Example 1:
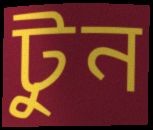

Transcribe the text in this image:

টুন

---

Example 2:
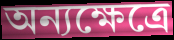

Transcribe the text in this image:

অন্যক্ষেত্রে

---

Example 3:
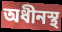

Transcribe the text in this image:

অধীনস্থ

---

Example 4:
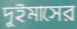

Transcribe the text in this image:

দুইমাসের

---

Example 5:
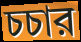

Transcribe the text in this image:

চচার